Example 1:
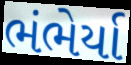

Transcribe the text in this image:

ભંભેર્યા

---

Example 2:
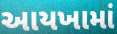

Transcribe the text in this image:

આયખામાં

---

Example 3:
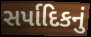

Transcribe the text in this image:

સર્પાદિકનું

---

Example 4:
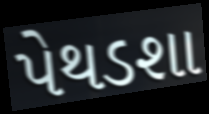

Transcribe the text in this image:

પેથડશા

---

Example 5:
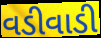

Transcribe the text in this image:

વડીવાડી